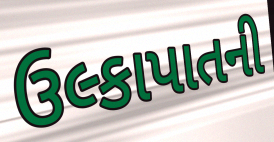
ઉલ્કાપાતની